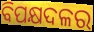
ବିପକ୍ଷଦଳର